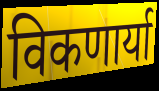
विकणार्या